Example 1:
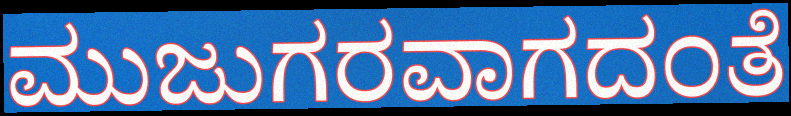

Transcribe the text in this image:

ಮುಜುಗರವಾಗದಂತೆ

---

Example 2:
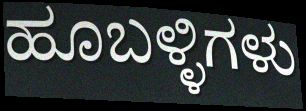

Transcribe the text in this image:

ಹೂಬಳ್ಳಿಗಳು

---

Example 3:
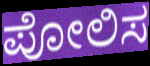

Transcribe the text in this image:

ಪೋಲಿಸ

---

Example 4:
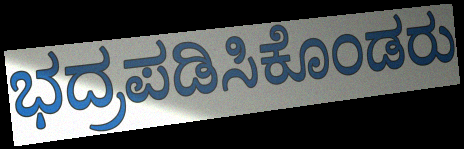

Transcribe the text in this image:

ಭದ್ರಪಡಿಸಿಕೊಂಡರು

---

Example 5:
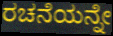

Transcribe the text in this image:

ರಚನೆಯನ್ನೇ